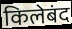
किलेबंद